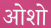
ओशो